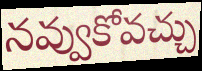
నవ్వుకోవచ్చు